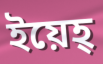
ইয়েহ্